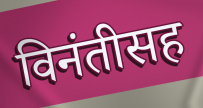
विनंतीसह